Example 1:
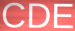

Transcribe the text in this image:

CDE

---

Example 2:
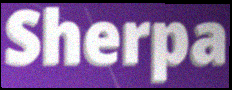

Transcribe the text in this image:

Sherpa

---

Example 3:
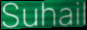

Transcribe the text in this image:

Suhail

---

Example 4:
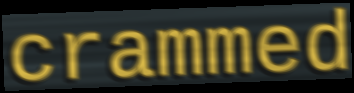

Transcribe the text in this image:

crammed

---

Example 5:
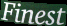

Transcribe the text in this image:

Finest